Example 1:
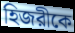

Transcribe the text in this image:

হিজরীকে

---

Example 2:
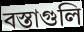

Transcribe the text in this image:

বস্তাগুলি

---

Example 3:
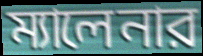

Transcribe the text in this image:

ম্যালেনার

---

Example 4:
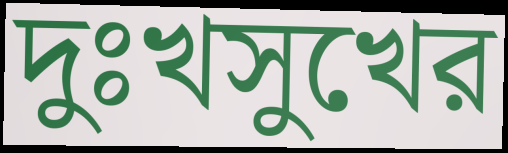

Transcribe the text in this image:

দুঃখসুখের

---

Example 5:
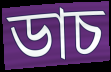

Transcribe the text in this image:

ডাচ